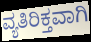
ವ್ಯತಿರಿಕ್ತವಾಗಿ